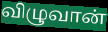
விழுவான்